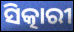
ସିତ୍କାରୀ